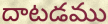
దాటడము